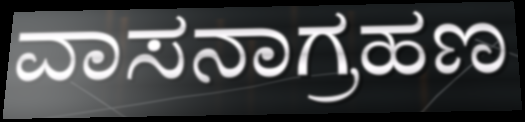
ವಾಸನಾಗ್ರಹಣ